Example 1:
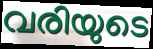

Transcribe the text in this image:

വരിയുടെ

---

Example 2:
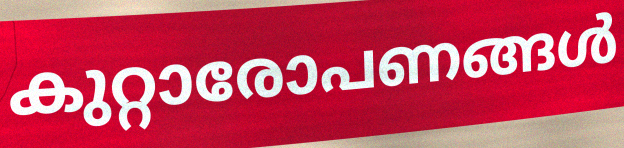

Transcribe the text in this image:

കുറ്റാരോപണങ്ങൾ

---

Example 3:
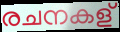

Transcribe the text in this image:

രചനകള്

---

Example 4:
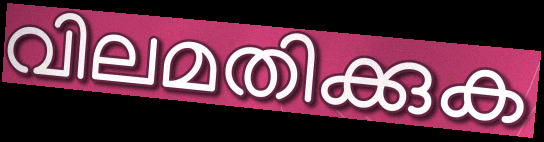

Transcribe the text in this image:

വിലമതിക്കുക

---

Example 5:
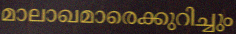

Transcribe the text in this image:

മാലാഖമാരെക്കുറിച്ചും